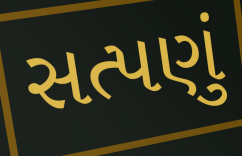
સત્પણું